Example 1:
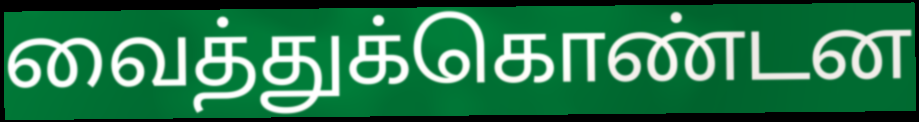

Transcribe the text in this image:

வைத்துக்கொண்டன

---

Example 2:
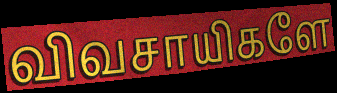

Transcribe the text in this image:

விவசாயிகளே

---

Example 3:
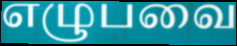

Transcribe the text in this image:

எழுபவை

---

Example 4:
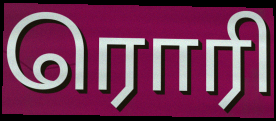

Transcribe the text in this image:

ரொரி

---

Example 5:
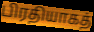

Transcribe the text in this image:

பிரதியாகத்